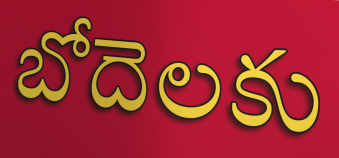
బోదెలకు